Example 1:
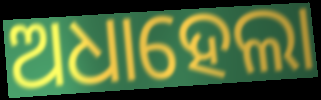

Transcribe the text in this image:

ଅଧାହେଲା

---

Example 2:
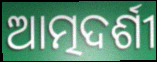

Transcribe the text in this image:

ଆତ୍ମଦର୍ଶୀ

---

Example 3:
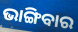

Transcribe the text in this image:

ଭାଙ୍ଗିବାର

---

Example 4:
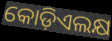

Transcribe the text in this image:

କୋଡ଼ିଏଲକ୍ଷ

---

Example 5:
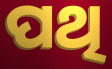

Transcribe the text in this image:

ପଥି